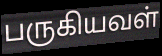
பருகியவள்